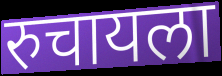
रुचायला